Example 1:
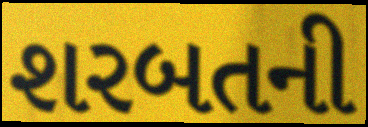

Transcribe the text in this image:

શરબતની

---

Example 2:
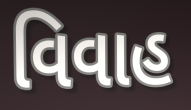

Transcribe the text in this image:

વિવાહ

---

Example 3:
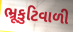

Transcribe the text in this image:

ભ્રૂકુટિવાળી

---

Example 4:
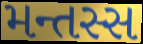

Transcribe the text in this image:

મન્તસ્સ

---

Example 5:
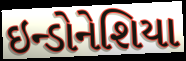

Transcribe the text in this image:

ઇન્ડોનેશિયા